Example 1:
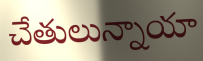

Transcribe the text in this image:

చేతులున్నాయా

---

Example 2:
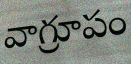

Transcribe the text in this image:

వాగ్రూపం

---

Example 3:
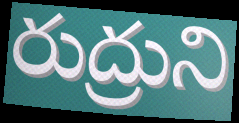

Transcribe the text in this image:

రుద్రుని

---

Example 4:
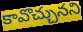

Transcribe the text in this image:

కావొచ్చునని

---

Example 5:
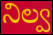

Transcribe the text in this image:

నిల్వ